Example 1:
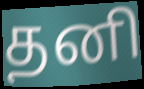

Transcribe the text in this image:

தனி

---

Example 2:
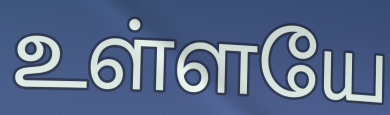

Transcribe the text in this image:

உள்ளயே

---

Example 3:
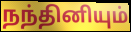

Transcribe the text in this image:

நந்தினியும்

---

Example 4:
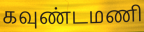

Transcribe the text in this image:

கவுண்டமணி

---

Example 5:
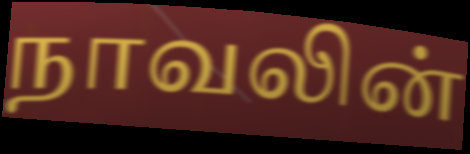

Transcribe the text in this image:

நாவலின்